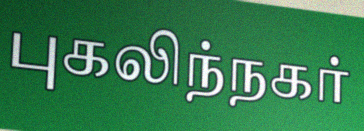
புகலிந்நகர்